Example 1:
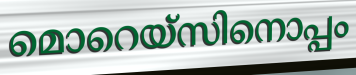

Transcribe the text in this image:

മൊറെയ്സിനൊപ്പം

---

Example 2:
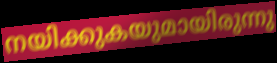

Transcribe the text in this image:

നയിക്കുകയുമായിരുന്നു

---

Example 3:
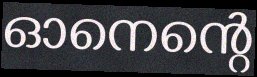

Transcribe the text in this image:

ഓനെന്റെ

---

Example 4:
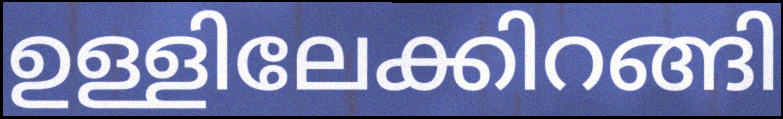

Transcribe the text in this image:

ഉള്ളിലേക്കിറങ്ങി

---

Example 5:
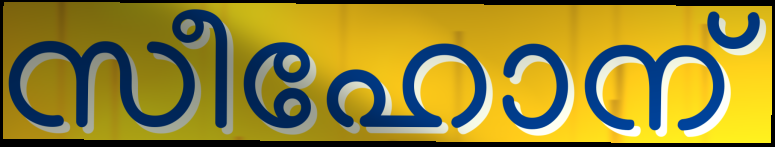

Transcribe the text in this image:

സീഹോന്